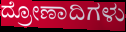
ದ್ರೋಣಾದಿಗಳು